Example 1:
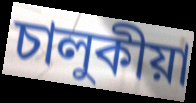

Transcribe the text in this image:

চালুকীয়া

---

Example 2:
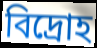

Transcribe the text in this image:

বিদ্ৰোহ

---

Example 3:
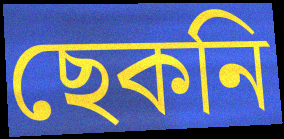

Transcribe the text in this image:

ছেকনি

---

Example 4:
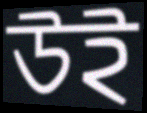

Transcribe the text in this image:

উই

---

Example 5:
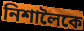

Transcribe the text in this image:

নিশালৈকে